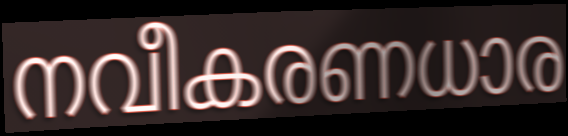
നവീകരണധാര